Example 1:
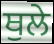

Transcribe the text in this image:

ਥੁਲੇ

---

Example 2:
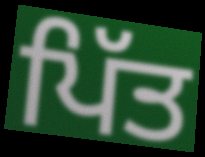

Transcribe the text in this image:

ਪਿੱਤ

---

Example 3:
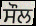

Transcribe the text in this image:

ਸੌਲ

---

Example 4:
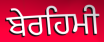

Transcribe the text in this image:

ਬੇਰਹਿਮੀ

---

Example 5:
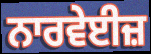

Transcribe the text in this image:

ਨਾਰਵੇਈਜ਼